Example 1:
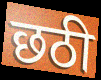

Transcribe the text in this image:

छठी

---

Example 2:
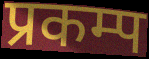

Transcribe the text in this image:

प्रकम्प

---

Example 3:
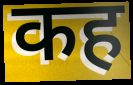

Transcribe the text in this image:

कह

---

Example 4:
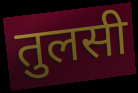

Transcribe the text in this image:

तुलसी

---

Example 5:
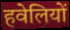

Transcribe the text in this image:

हवेलियों